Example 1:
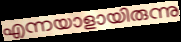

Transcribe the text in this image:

എന്നയാളായിരുന്നു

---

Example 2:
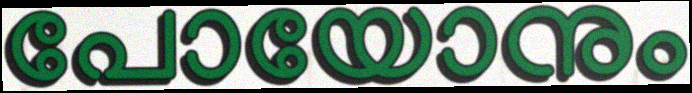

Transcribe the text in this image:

പോയോനും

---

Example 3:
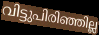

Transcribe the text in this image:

വിട്ടുപിരിഞ്ഞില്ല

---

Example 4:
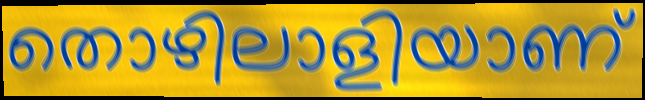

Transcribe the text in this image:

തൊഴിലാളിയാണ്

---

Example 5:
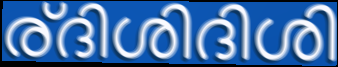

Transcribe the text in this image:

ര്ദിശിദിശി